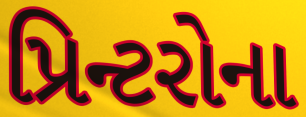
પ્રિન્ટરોના